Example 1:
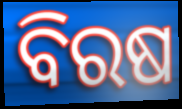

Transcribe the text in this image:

ବିରଷ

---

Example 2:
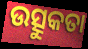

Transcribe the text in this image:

ଉତ୍ସୁକତା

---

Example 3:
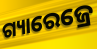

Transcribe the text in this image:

ଗ୍ୟାରେଜ୍ରେ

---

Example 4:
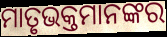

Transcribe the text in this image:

ମାତୃଭକ୍ତମାନଙ୍କର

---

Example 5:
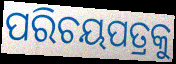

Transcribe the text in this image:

ପରିଚୟପତ୍ରକୁ